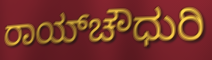
ರಾಯ್‌ಚೌಧುರಿ